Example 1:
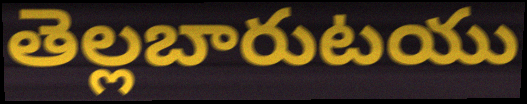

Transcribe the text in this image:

తెల్లబారుటయు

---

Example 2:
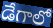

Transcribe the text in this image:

డేగాలో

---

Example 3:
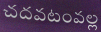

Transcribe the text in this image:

చదవటంవల్ల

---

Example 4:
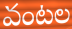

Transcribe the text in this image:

వంటల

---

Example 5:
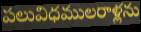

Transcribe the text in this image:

పలువిధములరాళ్లను